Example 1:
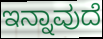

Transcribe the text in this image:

ಇನ್ನಾವುದೆ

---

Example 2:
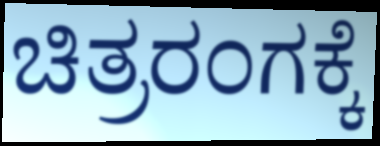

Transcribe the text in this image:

ಚಿತ್ರರಂಗಕ್ಕೆ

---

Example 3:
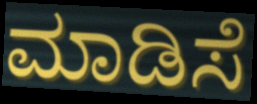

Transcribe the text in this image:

ಮಾಡಿಸೆ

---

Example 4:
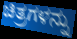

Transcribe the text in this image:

ಚಿತ್ರಗಳನ್ನು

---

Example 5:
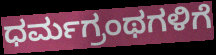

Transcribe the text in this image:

ಧರ್ಮಗ್ರಂಥಗಳಿಗೆ